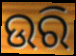
ଉରି